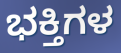
ಭಕ್ತಿಗಳ